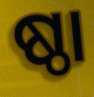
ଷ୍ଠା